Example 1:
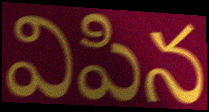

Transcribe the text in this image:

విపిన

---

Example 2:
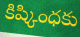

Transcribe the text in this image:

కిష్కింధకు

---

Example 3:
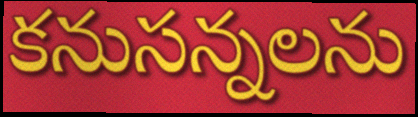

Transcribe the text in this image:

కనుసన్నలను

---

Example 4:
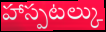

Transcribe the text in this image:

హాస్పటల్కు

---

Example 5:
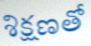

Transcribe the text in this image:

శిక్షణతో